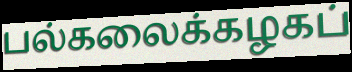
பல்கலைக்கழகப்